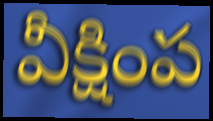
వీక్షింప